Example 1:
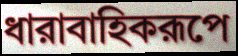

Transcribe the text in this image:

ধারাবাহিকরূপে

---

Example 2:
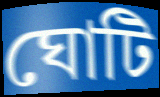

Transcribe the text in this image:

ঘোটি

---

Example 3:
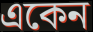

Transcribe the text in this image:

একেন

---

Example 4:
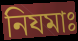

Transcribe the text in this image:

নিযমাঃ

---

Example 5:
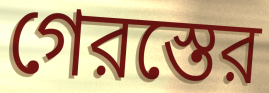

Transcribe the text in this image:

গেরস্তের